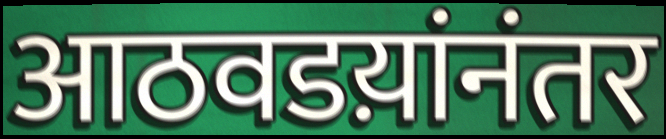
आठवडय़ांनंतर